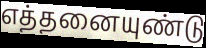
எத்தனையுண்டு